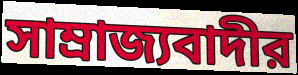
সাম্রাজ্যবাদীর